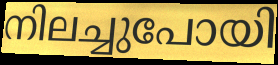
നിലച്ചുപോയി